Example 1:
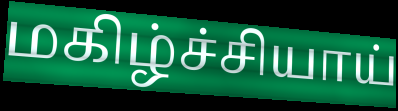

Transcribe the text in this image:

மகிழ்ச்சியாய்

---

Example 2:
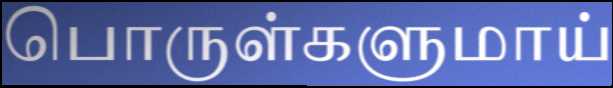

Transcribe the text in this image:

பொருள்களுமாய்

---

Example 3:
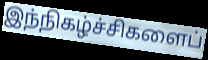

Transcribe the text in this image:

இந்நிகழ்ச்சிகளைப்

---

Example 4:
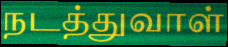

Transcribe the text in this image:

நடத்துவாள்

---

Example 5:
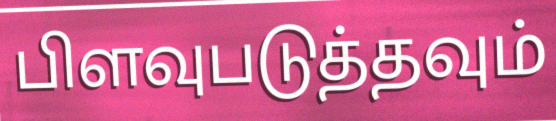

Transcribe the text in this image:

பிளவுபடுத்தவும்